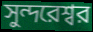
সুন্দরেশ্বর